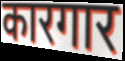
कारगार